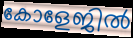
കോളേജിൽ